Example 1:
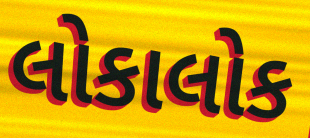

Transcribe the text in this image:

લોકાલોક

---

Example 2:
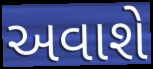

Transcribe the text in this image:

અવાશે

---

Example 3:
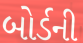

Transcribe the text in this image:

બોર્ડની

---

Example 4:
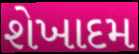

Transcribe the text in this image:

શેખાદમ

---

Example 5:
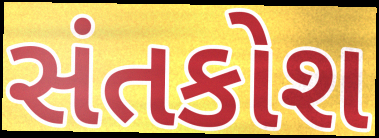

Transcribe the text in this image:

સંતકોશ